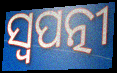
ସ୍ୱପତ୍ନୀ